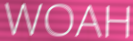
WOAH